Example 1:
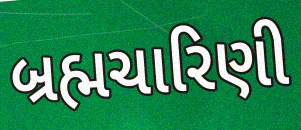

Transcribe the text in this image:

બ્રહ્મચારિણી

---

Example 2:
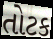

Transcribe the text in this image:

તોટક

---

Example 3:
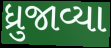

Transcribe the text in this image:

ધ્રુજાવ્યા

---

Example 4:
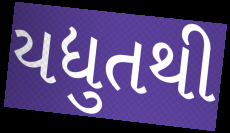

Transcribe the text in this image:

યદ્યુતથી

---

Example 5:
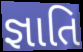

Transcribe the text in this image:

જ્ઞાતિ